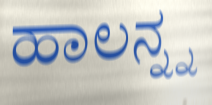
ಹಾಲನ್ನ್ನ